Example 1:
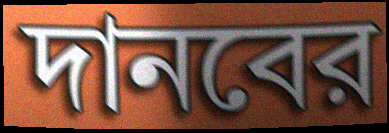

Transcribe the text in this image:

দানবের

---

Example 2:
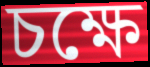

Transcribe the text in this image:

চক্ষে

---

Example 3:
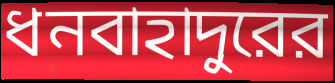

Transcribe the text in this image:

ধনবাহাদুরের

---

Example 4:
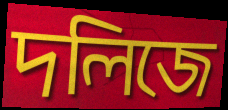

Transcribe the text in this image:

দলিজে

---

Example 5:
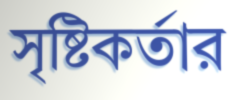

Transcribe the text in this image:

সৃষ্টিকর্তার